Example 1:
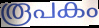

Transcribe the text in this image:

രൂപകം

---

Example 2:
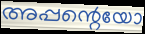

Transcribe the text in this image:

അപ്പന്റെയോ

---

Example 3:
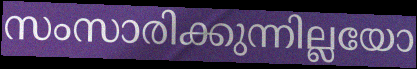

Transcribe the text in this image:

സംസാരിക്കുന്നില്ലയോ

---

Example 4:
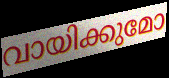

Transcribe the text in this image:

വായിക്കുമോ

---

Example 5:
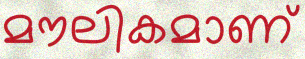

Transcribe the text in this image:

മൗലികമാണ്